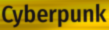
Cyberpunk